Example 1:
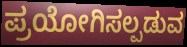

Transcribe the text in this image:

ಪ್ರಯೋಗಿಸಲ್ಪಡುವ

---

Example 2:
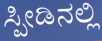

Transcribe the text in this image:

ಸ್ಪೀಡಿನಲ್ಲಿ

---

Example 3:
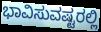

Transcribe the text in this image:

ಭಾವಿಸುವಷ್ಟರಲ್ಲಿ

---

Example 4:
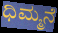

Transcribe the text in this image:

ಧಿಮ್ಮನೆ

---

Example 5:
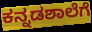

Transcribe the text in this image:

ಕನ್ನಡಶಾಲೆಗೆ